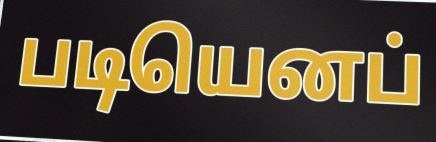
படியெனப்